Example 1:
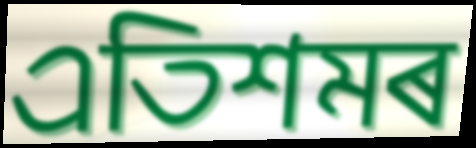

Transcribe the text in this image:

এতিশমৰ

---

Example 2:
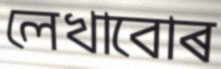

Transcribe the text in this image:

লেখাবোৰ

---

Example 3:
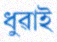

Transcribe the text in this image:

ধুৱাই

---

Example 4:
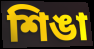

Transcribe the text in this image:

শিঙা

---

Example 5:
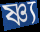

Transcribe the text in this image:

ষ্ণ্য